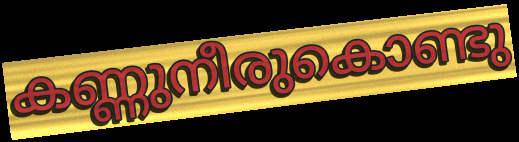
കണ്ണുനീരുകൊണ്ടു